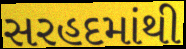
સરહદમાંથી